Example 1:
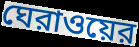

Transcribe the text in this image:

ঘেরাওয়ের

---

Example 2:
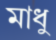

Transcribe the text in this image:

মাধু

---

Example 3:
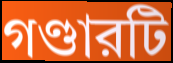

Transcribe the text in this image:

গণ্ডারটি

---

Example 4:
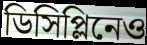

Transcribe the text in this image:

ডিসিপ্লিনেও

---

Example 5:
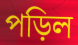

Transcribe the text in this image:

পড়িল